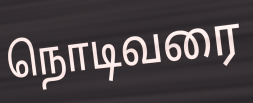
நொடிவரை